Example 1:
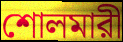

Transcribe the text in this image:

শোলমারী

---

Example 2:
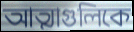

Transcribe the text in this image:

আত্মাগুলিকে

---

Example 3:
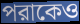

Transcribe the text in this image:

পরাকেও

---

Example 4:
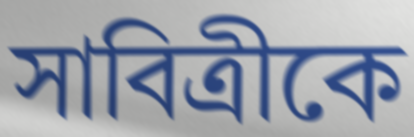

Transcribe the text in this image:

সাবিত্রীকে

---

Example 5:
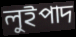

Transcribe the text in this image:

লুইপাদ